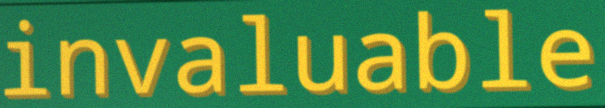
invaluable